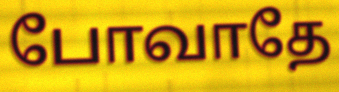
போவாதே